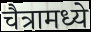
चैत्रामध्ये